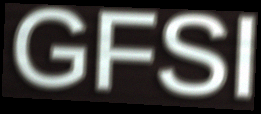
GFSI